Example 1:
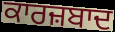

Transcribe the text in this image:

ਕਾਰਜ਼ਬਾਦ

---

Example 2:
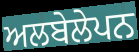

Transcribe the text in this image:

ਅਲਬੇਲੇਪਨ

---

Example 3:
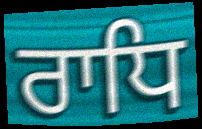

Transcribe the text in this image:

ਰਾਧਿ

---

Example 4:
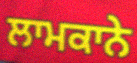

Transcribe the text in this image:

ਲਾਮਕਾਨੇ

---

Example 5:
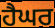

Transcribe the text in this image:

ਹੈਘਰ